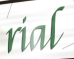
rial